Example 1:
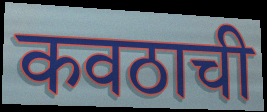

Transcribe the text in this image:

कवठाची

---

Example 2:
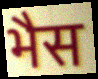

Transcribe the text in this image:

भैस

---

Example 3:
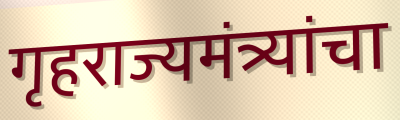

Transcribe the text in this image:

गृहराज्यमंत्र्यांचा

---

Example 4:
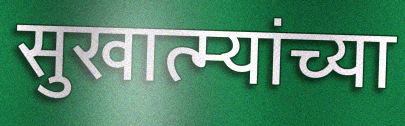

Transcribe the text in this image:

सुखात्म्यांच्या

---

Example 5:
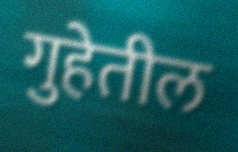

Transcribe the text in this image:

गुहेतील